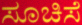
ಸೂಚಿಸೆ